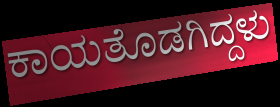
ಕಾಯತೊಡಗಿದ್ದಳು